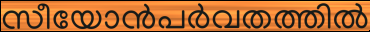
സീയോൻപർവതത്തിൽ